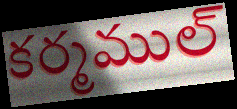
కర్మముల్